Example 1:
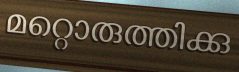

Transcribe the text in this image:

മറ്റൊരുത്തിക്കു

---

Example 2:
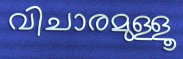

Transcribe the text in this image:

വിചാരമുള്ളൂ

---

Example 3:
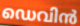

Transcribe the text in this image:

ഡെവിൻ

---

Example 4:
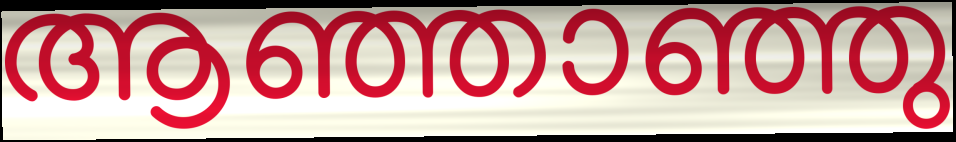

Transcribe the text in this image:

ആഞ്ഞാഞ്ഞു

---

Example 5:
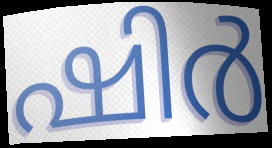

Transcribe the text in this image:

ഷിർ